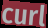
curl